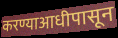
करण्याआधीपासून